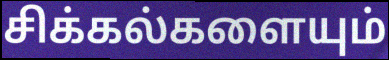
சிக்கல்களையும்